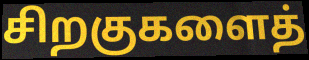
சிறகுகளைத்